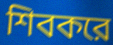
শিবকরে